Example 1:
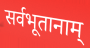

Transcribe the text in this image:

सर्वभूतानाम्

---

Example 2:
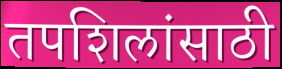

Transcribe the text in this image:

तपशिलांसाठी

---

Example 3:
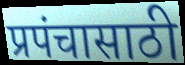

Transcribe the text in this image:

प्रपंचासाठी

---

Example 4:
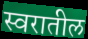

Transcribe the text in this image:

स्वरातील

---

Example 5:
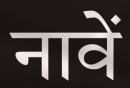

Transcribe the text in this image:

नावें